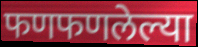
फणफणलेल्या